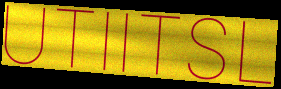
UTIITSL